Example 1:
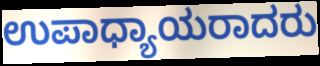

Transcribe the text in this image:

ಉಪಾಧ್ಯಾಯರಾದರು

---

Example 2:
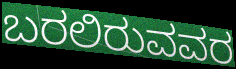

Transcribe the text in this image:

ಬರಲಿರುವವರ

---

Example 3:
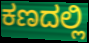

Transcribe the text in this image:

ಕಣದಲ್ಲಿ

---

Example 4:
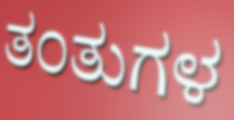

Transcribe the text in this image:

ತಂತುಗಳ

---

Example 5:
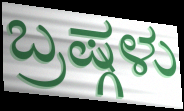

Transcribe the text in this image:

ಬ್ರಷ್ಗಳು